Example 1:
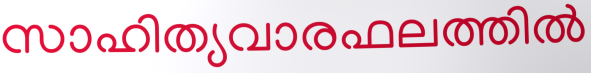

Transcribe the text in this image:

സാഹിത്യവാരഫലത്തിൽ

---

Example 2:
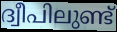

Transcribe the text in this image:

ദ്വീപിലുണ്ട്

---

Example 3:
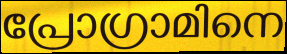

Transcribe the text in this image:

പ്രോഗ്രാമിനെ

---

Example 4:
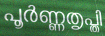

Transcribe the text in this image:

പൂർണ്ണതൃപ്തി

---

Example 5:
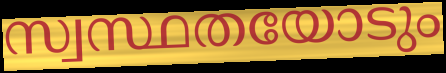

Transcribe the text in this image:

സ്വസ്ഥതയോടും